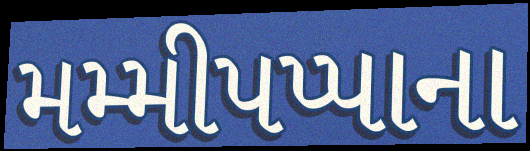
મમ્મીપપ્પાના